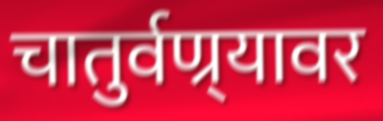
चातुर्वण्र्यावर